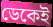
ডেকেই